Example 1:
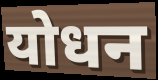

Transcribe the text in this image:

योधन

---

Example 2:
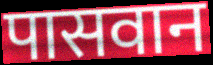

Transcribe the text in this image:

पासवान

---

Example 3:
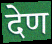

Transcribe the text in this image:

देण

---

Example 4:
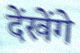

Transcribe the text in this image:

देंखेंगे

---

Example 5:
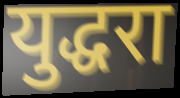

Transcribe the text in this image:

युद्धरा